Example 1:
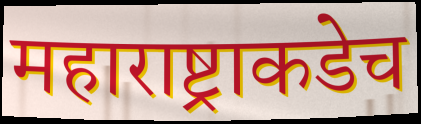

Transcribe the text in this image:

महाराष्ट्राकडेच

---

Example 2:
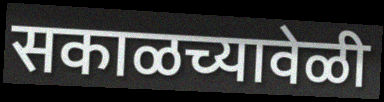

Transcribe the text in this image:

सकाळच्यावेळी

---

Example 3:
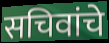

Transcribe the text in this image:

सचिवांचे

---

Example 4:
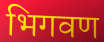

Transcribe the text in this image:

भिगवण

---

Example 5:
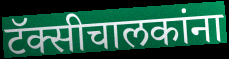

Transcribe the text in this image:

टॅक्सीचालकांना